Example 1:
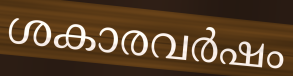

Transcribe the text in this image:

ശകാരവർഷം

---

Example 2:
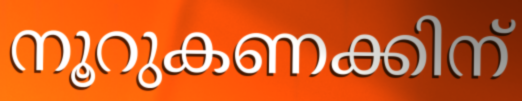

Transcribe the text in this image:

നൂറുകണക്കിന്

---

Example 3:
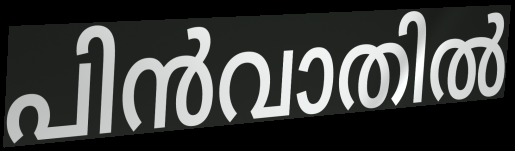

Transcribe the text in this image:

പിൻവാതിൽ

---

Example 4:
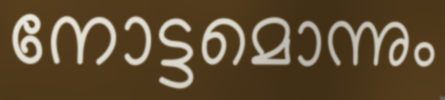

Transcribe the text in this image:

നോട്ടമൊന്നും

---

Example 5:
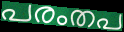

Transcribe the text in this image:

പരംതപ